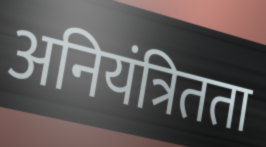
अनियंत्रितता